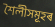
শৈলীসমূহৰ